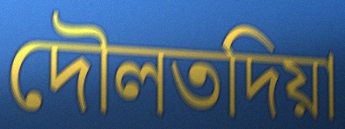
দৌলতদিয়া